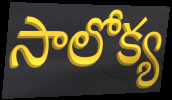
సాలోక్య